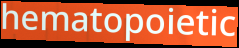
hematopoietic